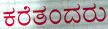
ಕರೆತಂದರು